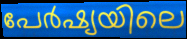
പേർഷ്യയിലെ